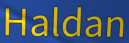
Haldan